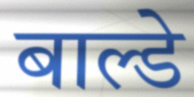
बाल्डे